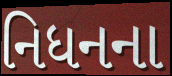
નિધનના